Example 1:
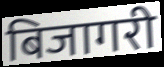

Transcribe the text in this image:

बिजागरी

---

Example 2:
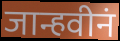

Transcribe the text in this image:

जान्हवीनं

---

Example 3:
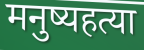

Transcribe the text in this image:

मनुष्यहत्या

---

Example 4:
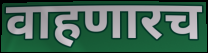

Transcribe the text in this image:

वाहणारच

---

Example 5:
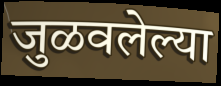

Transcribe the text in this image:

जुळवलेल्या